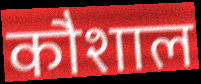
कौशाल